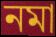
নমা